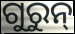
ଗୁରୁନ୍